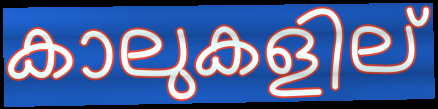
കാലുകളില്